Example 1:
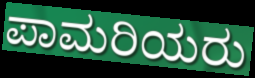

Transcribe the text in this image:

ಪಾಮರಿಯರು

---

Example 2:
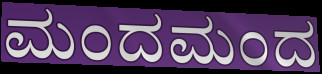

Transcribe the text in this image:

ಮಂದಮಂದ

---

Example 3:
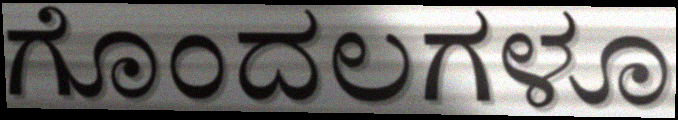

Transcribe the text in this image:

ಗೊಂದಲಗಳೂ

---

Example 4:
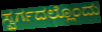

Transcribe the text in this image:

ಸ್ವರ್ಗದಲ್ಲೊಂದು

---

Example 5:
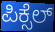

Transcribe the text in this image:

ಪಿಕ್ಸೆಲ್